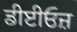
ਡੀਈਓਜ਼